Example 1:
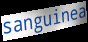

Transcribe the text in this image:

sanguinea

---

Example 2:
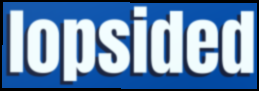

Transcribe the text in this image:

lopsided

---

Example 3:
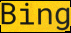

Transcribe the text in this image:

Bing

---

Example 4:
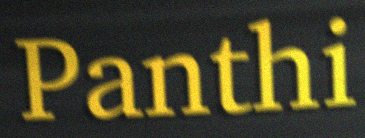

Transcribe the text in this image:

Panthi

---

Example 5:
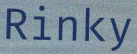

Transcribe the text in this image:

Rinky